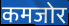
कमजोर